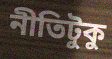
নীতিটুকু